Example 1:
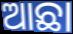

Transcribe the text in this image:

ଆଛା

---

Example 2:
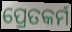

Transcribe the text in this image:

ପ୍ରେତକର୍ମ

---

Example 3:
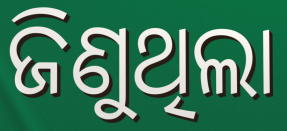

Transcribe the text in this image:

ଜିଣୁଥିଲା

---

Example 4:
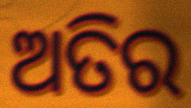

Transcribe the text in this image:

ଅତିର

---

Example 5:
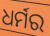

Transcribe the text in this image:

ଧର୍ମର